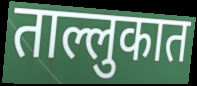
ताल्लुकात